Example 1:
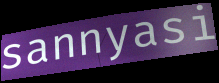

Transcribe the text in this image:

sannyasi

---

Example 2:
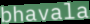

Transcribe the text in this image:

bhavala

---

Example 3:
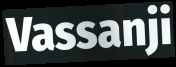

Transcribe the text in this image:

Vassanji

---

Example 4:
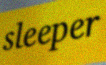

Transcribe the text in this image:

sleeper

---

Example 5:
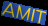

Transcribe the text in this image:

AMIT